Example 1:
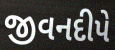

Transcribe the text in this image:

જીવનદીપે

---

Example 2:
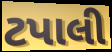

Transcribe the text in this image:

ટપાલી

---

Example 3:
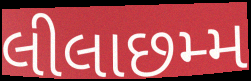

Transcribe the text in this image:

લીલાછમ્મ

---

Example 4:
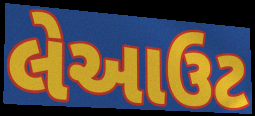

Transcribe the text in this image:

લેઆઉટ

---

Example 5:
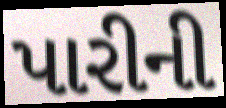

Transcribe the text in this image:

પારીની